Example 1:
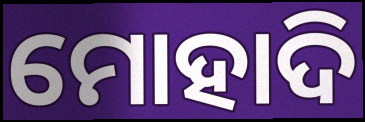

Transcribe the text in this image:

ମୋହାଦି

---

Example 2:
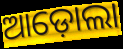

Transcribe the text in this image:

ଆଡ଼ୋଲା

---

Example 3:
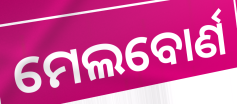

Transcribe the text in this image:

ମେଲବୋର୍ଣ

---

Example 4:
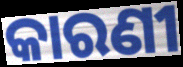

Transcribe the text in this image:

କାରଣୀ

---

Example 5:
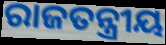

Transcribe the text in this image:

ରାଜତନ୍ତ୍ରୀୟ